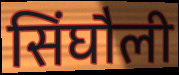
सिंघौली